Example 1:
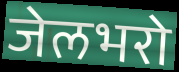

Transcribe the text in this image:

जेलभरो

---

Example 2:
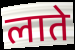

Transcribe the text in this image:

लाते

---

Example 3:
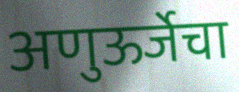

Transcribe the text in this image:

अणुऊर्जेचा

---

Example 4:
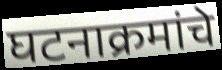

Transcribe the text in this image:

घटनाक्रमांचे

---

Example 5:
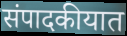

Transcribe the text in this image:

संपादकीयात